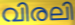
വിരലി